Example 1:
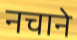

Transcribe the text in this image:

नचाने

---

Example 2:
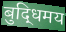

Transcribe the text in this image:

बुद्धिमय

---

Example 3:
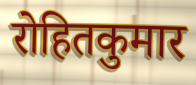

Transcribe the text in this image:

रोहितकुमार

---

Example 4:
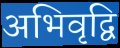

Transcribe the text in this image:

अभिवृद्वि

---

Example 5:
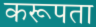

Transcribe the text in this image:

करूपता